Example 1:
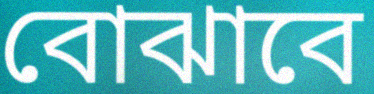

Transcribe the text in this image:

বোঝাবে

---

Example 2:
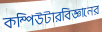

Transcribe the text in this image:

কম্পিউটারবিজ্ঞানের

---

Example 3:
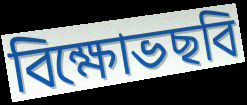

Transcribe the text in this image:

বিক্ষোভছবি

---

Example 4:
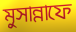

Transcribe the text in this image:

মুসান্নাফে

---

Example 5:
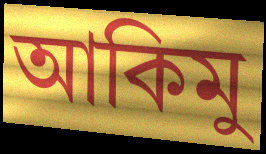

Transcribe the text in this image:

আকিমু